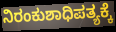
ನಿರಂಕುಶಾಧಿಪತ್ಯಕ್ಕೆ